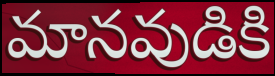
మానవుడికి